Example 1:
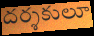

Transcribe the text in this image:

దర్శకులూ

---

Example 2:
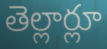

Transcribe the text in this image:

తెల్లార్లూ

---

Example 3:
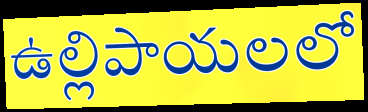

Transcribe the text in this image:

ఉల్లిపాయలలో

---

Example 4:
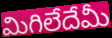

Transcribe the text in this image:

మిగిలేదేమీ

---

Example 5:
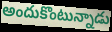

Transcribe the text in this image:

అందుకొంటున్నాడు